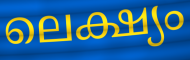
ലെക്ഷ്യം